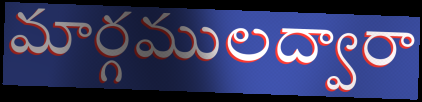
మార్గములద్వారా